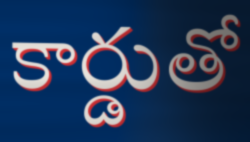
కార్డుతో